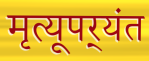
मृत्यूपर्यंत